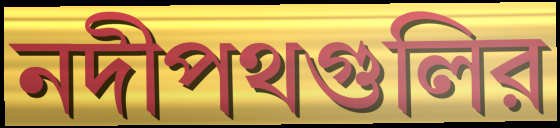
নদীপথগুলির